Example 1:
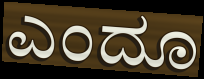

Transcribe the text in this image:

ಎಂದೂ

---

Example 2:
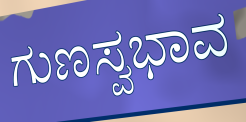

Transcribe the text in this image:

ಗುಣಸ್ವಭಾವ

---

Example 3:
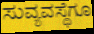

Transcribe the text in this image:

ಸುವ್ಯವಸ್ಥೆಗೂ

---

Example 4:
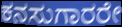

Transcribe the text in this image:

ಕನಸುಗಾರರೇ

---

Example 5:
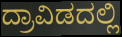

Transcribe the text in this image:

ದ್ರಾವಿಡದಲ್ಲಿ